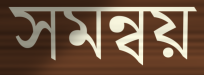
সমন্বয়